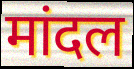
मांदल